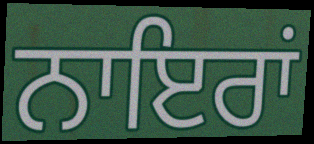
ਨਾਇਰਾਂ